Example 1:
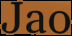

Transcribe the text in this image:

Jao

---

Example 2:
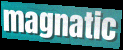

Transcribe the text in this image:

magnatic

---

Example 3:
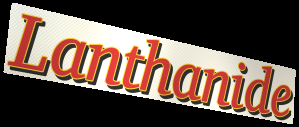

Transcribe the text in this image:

Lanthanide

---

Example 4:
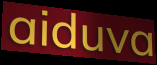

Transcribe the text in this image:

aiduva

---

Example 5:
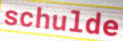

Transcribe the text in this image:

schulde